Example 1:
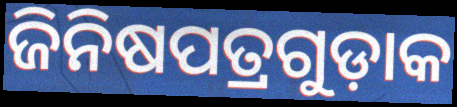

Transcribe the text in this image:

ଜିନିଷପତ୍ରଗୁଡ଼ାକ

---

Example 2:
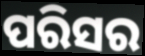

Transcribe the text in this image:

ପରିସର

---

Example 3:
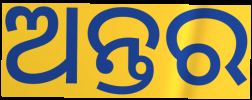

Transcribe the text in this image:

ଅନ୍ତର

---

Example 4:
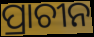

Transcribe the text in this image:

ପ୍ରାଚୀନ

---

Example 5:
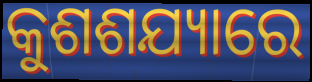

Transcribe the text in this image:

କୁଶଶଯ୍ୟାରେ